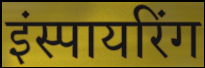
इंस्पायरिंग